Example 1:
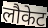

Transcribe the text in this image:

लौकेट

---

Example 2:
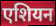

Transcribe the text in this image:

एशियन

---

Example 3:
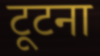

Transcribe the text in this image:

टूटना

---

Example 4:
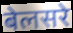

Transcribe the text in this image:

बेलसरे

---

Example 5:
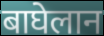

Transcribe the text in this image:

बाघेलान